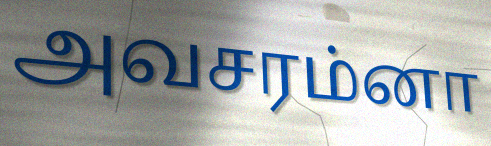
அவசரம்னா